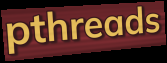
pthreads